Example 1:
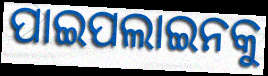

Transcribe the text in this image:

ପାଇପଲାଇନକୁ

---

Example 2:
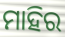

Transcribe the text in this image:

ମାହିର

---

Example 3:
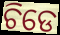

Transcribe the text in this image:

ଚିଡେ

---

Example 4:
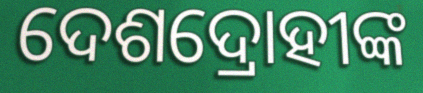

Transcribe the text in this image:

ଦେଶଦ୍ରୋହୀଙ୍କ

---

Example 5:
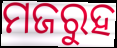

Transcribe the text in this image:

ମଜରୁହ